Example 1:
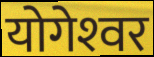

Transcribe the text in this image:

योगेश्‍वर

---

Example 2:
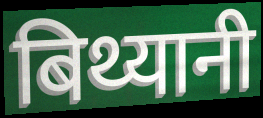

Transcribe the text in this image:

बिथ्यानी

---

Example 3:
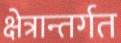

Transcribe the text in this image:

क्षेत्रान्तर्गत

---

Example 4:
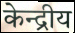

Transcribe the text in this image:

केन्‍द्रीय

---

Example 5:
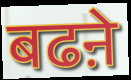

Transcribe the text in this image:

बढऩे